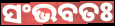
ସଂଭବତଃ